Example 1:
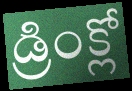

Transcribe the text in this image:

డ్రింక్లో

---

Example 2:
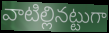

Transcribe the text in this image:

వాటిల్లినట్టుగా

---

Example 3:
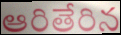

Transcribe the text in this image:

ఆరితేరిన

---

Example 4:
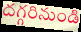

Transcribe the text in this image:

దగ్గరినుండి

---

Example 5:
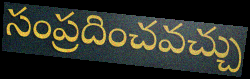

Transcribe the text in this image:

సంప్రదించవచ్చు